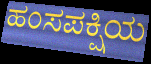
ಹಂಸಪಕ್ಷಿಯ